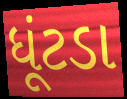
ધૂંટડા